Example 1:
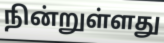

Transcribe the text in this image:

நின்றுள்ளது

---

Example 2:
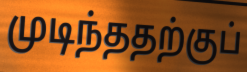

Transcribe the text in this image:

முடிந்ததற்குப்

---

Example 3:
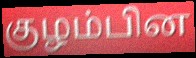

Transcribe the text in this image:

குழம்பின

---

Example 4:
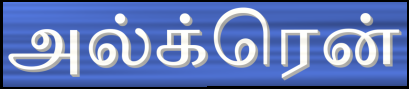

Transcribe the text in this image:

அல்க்ரென்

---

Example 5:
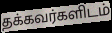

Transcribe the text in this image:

தக்கவர்களிடம்